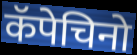
कॅपेचिनो